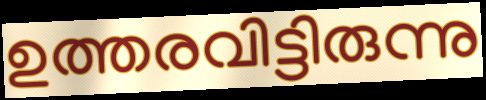
ഉത്തരവിട്ടിരുന്നു